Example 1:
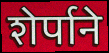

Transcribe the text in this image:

शेर्पाने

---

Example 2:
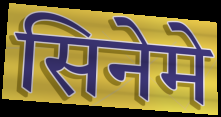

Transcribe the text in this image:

सिनेमे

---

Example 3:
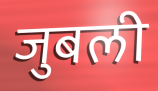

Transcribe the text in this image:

जुबली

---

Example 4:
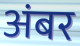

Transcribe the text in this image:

अंबर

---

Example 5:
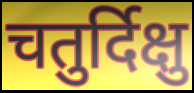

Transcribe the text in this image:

चतुर्दिक्षु